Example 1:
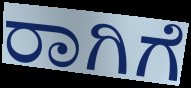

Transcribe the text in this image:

ರಾಗಿಗೆ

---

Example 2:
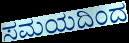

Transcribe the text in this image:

ಸಮಯದಿಂದ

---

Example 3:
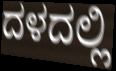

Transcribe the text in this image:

ದಳದಲ್ಲಿ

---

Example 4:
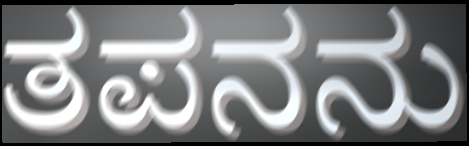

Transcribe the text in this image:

ತಪನನು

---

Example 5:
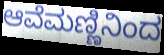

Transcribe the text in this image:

ಆವೆಮಣ್ಣಿನಿಂದ